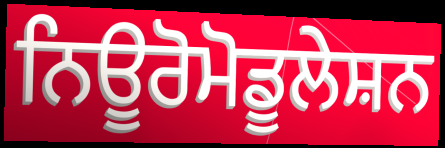
ਨਿਊਰੋਮੋਡੂਲੇਸ਼ਨ